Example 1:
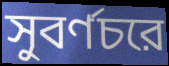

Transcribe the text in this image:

সুবর্ণচরে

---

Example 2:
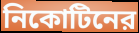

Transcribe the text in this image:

নিকোটিনের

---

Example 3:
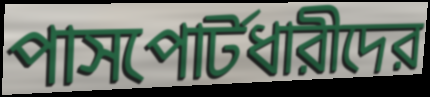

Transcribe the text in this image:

পাসপোর্টধারীদের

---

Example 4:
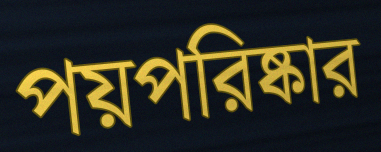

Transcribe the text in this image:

পয়পরিষ্কার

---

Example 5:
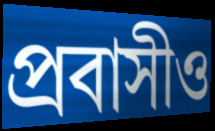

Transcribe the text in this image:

প্রবাসীও